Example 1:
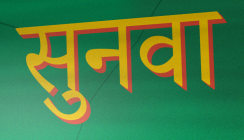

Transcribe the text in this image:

सुनवा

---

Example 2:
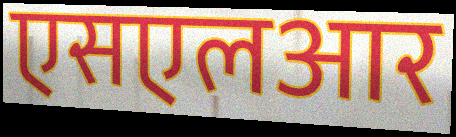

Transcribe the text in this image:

एसएलआर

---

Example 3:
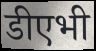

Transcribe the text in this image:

डीएभी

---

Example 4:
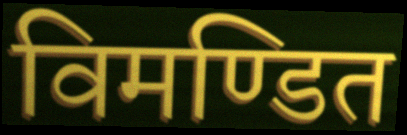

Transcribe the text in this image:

विमण्डित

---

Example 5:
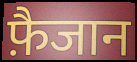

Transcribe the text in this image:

फ़ैजान